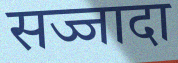
सज्जादा